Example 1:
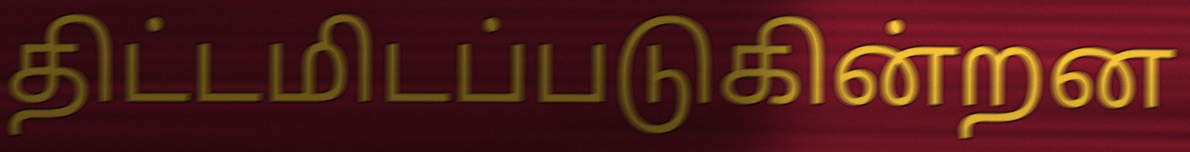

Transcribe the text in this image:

திட்டமிடப்படுகின்றன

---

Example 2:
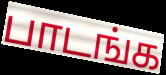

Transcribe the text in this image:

பாடங்க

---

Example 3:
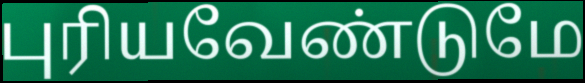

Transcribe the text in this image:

புரியவேண்டுமே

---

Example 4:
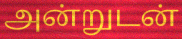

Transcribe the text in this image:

அன்றுடன்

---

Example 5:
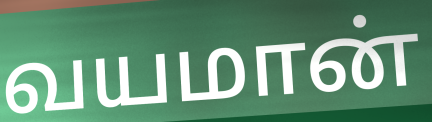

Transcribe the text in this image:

வயமான்